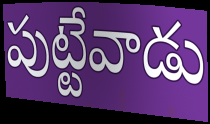
పుట్టేవాడు